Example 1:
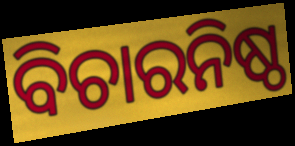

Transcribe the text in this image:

ବିଚାରନିଷ୍ଠ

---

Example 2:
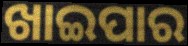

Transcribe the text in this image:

ଖାଇପାର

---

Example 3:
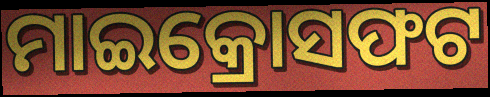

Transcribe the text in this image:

ମାଇକ୍ରୋସଫଟ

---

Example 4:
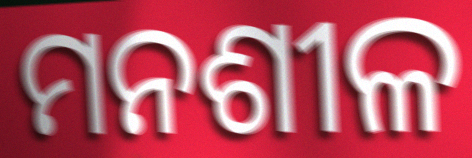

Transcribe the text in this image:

ମନଶୀଳ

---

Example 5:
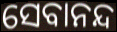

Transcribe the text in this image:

ସେବାନନ୍ଦ